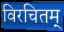
विरचितम्